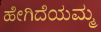
ಹೇಗಿದೆಯಮ್ಮ